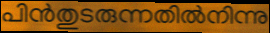
പിൻതുടരുന്നതിൽനിന്നു